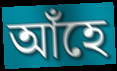
আঁহে